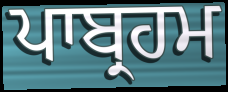
ਪਾਬ੍ਰਹਮ